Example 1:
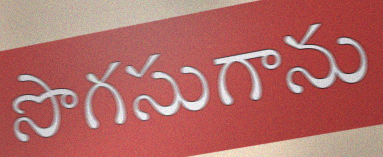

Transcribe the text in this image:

సొగసుగాను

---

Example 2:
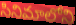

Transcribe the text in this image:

సినిమాలోని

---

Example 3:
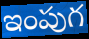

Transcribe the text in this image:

ఇంపుగ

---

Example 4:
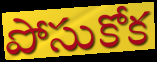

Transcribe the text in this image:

పోసుకోక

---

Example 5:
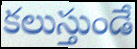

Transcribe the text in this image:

కలుస్తుండే